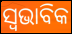
ସ୍ୱଭାବିକ